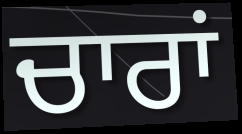
ਚਾਰਾਂ